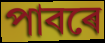
পাবৰে